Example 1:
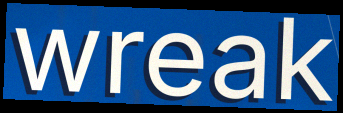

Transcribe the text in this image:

wreak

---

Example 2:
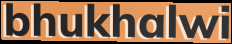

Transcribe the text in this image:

bhukhalwi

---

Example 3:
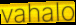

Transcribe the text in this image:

vahalo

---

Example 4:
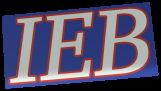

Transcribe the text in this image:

IEB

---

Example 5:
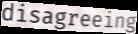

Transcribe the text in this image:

disagreeing